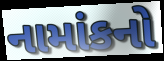
નામાંકનો